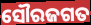
ସୌରଜଗତ